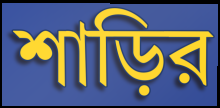
শাড়ির